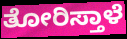
ತೋರಿಸ್ತಾಳೆ